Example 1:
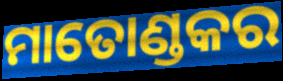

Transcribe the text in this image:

ମାତୋଣ୍ଡକର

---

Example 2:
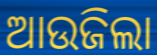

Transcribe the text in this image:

ଆଉଜିଲା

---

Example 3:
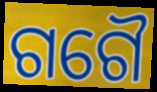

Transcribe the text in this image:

ଗଗୈ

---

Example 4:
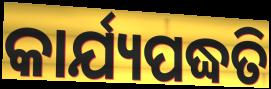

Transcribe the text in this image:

କାର୍ଯ୍ୟପଦ୍ଧତି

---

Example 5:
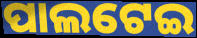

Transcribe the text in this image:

ପାଲଟେଇ